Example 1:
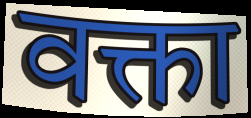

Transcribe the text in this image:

वक्ता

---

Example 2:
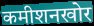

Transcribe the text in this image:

कमीशनखोर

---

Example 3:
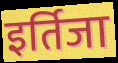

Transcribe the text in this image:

इर्तिजा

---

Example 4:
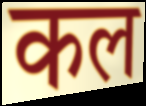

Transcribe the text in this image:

कल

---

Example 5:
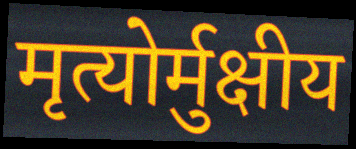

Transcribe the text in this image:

मृत्‍योर्मुक्षीय